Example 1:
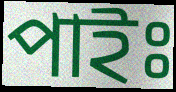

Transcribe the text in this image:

পাইঃ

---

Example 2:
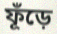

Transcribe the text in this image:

ফূঁড়ে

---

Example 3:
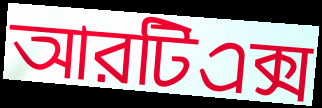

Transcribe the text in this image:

আরটিএক্স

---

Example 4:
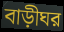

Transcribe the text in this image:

বাড়ীঘর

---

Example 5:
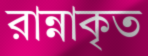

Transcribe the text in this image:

রান্নাকৃত